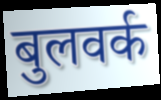
बुलवर्क